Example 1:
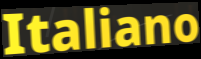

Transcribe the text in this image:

Italiano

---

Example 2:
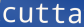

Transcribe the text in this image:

cutta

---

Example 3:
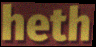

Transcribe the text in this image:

heth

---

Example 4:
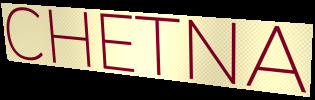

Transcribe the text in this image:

CHETNA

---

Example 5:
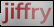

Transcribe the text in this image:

jiffry